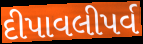
દીપાવલીપર્વ